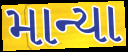
માન્યા